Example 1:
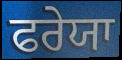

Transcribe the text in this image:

ਫਰੇਯਾ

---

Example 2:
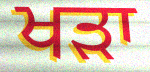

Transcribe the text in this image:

ਖਡ਼ਾ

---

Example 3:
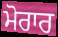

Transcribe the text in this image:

ਮੋਰਾਰ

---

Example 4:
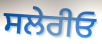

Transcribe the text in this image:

ਸਲੇਰੀਓ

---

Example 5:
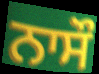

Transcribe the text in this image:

ਨਾਸੌ